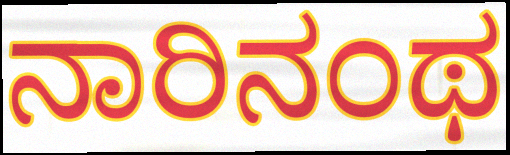
ನಾರಿನಂಥ